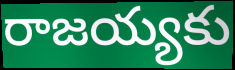
రాజయ్యకు